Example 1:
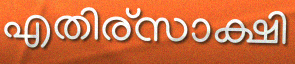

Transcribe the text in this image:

എതിര്സാക്ഷി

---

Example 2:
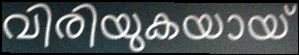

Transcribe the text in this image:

വിരിയുകയായ്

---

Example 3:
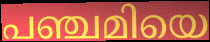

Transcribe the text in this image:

പഞ്ചമിയെ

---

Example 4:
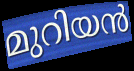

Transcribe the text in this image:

മുറിയൻ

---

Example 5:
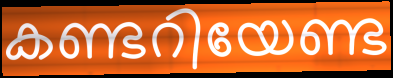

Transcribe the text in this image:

കണ്ടറിയേണ്ട